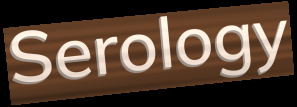
Serology